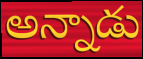
అన్నాడు